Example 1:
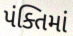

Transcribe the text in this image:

પંક્તિમાં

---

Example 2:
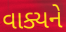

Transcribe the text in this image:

વાક્યને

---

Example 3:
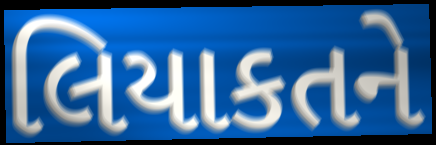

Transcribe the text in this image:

લિયાકતને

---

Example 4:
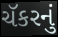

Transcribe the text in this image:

ચૅકરનું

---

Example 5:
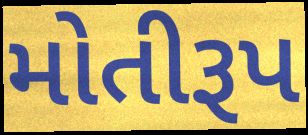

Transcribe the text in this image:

મોતીરૂપ